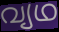
വ്യഥ